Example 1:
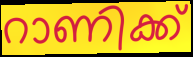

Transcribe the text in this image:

റാണിക്ക്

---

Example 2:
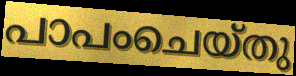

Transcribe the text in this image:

പാപംചെയ്തു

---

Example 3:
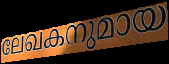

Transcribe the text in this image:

ലേഖകനുമായ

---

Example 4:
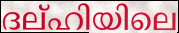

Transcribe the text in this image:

ദല്ഹിയിലെ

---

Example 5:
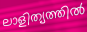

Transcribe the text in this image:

ലാളിത്യത്തിൽ